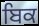
ਬਿਕ